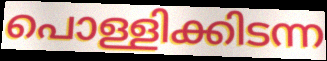
പൊള്ളിക്കിടന്ന